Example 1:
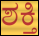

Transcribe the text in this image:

ಶಕ್ತಿ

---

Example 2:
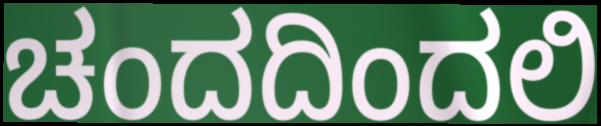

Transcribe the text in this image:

ಚಂದದಿಂದಲಿ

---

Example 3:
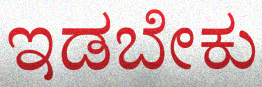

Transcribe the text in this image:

ಇಡಬೇಕು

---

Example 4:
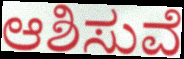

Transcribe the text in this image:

ಆಶಿಸುವೆ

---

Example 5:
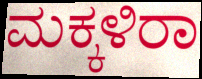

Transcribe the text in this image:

ಮಕ್ಕಳಿರಾ